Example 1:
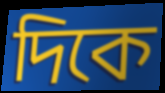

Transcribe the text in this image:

দিকে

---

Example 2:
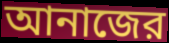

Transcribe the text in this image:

আনাজের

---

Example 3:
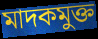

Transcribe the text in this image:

মাদকমুক্ত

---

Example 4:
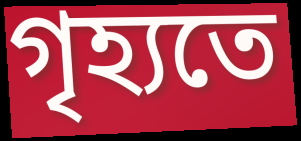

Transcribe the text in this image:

গৃহ্যতে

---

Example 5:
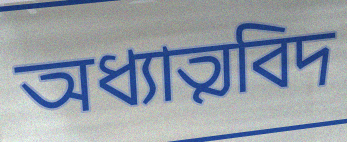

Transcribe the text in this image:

অধ্যাত্মবিদ